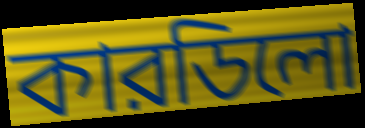
কারডিলো